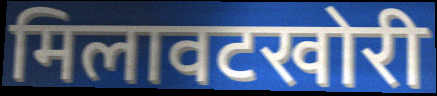
मिलावटखोरी